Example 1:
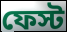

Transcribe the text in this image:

ফেস্ট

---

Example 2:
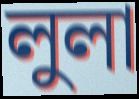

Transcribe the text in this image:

লুলা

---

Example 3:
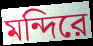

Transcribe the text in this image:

মন্দিরে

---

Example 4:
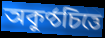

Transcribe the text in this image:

অকুণ্ঠচিত্তে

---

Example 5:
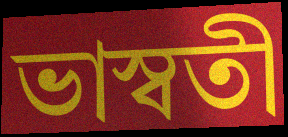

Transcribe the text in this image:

ভাস্বতী